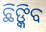
ଛିଙ୍କିବ